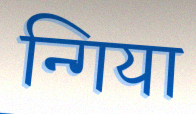
न्गिया